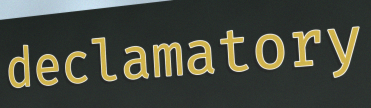
declamatory